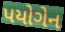
પયોગેન